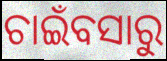
ଚାଇଁବସାରୁ